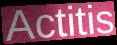
Actitis